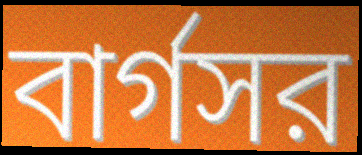
বার্গসর